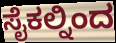
ಸೈಕಲ್ನಿಂದ